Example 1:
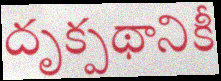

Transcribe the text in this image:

దృక్పథానికీ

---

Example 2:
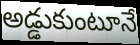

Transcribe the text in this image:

అడ్డుకుంటూనే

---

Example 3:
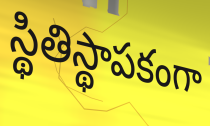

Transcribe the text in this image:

స్థితిస్థాపకంగా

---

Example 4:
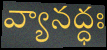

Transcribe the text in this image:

వ్యానద్ధః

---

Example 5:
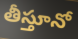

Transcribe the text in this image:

తీస్తూనో